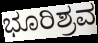
ಭೂರಿಶ್ರವ